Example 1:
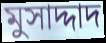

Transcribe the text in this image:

মুসাদ্দাদ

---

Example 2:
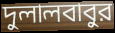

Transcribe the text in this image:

দুলালবাবুর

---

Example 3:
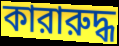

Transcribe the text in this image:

কারারুদ্ধ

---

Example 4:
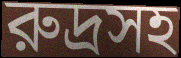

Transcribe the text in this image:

রুদ্রসহ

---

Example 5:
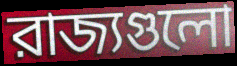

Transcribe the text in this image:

রাজ্যগুলো